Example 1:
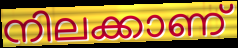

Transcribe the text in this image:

നിലക്കാണ്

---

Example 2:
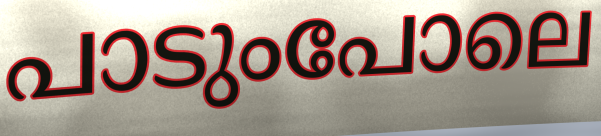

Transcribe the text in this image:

പാടുംപോലെ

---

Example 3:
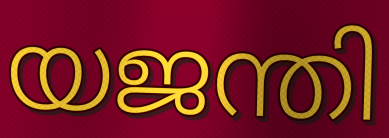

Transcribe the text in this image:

യജന്തി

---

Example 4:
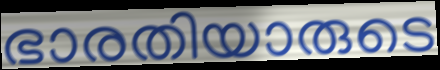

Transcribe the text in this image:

ഭാരതിയാരുടെ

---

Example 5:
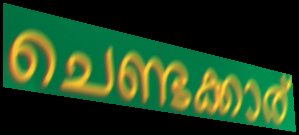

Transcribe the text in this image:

ചെണ്ടക്കാര്